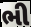
ભી